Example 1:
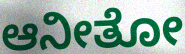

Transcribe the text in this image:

ಆನೀತೋ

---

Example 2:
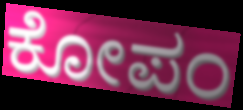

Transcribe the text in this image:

ಕೋಪಂ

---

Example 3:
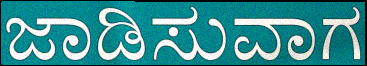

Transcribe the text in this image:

ಜಾಡಿಸುವಾಗ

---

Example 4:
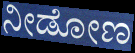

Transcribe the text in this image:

ನೀಡೋಣ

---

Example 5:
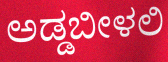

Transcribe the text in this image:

ಅಡ್ಡಬೀಳಲಿ